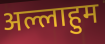
अल्लाहुम